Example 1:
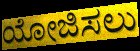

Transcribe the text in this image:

ಯೋಜಿಸಲು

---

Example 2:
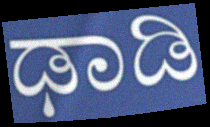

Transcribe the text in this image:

ಢಾಡಿ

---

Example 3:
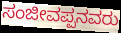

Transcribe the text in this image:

ಸಂಜೀವಪ್ಪನವರು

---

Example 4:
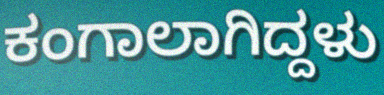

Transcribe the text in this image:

ಕಂಗಾಲಾಗಿದ್ದಳು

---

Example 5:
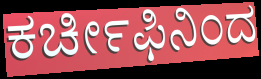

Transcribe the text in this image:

ಕರ್ಚೀಫಿನಿಂದ